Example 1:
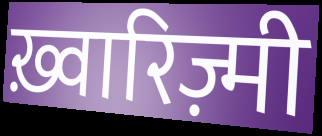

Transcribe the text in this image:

ख़्वारिज़्मी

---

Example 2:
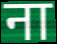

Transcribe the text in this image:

ना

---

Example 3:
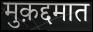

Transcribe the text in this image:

मुक़द्दमात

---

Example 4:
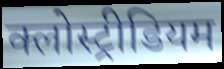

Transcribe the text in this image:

क्लोस्ट्रीडियम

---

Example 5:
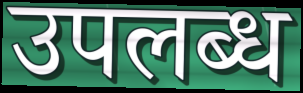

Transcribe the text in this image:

उपलब्ध